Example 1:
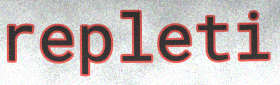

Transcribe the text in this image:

repleti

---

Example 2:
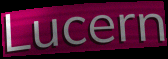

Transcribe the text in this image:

Lucern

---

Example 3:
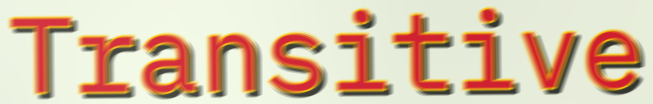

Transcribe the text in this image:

Transitive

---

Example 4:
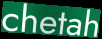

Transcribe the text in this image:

chetah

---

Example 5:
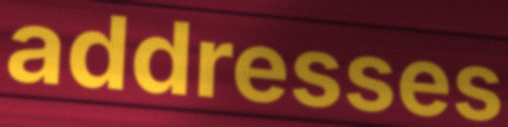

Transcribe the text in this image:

addresses